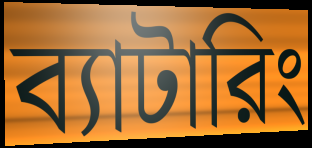
ব্যাটারিং